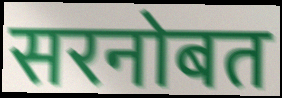
सरनोबत